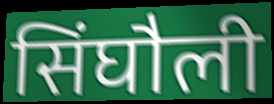
सिंघौली